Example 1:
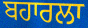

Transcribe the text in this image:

ਬਹਾਰਲਾ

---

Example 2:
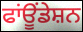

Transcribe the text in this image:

ਫਾਂਊਂਡੇਸ਼ਨ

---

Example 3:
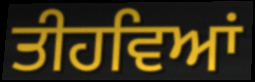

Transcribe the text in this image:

ਤੀਹਵਿਆਂ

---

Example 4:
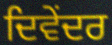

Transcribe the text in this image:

ਦਿਵੇਂਦਰ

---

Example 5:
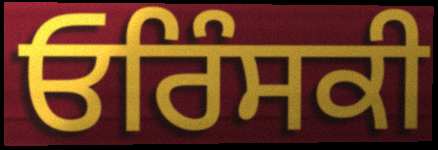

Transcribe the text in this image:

ਓਰਿੰਸਕੀ